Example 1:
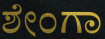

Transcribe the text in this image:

ಶೇಂಗಾ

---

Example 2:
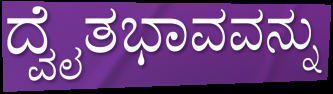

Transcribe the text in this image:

ದ್ವೈತಭಾವವನ್ನು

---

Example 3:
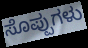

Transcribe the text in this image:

ಸೊಪ್ಪುಗಳು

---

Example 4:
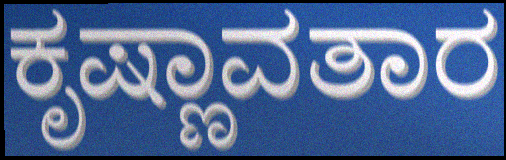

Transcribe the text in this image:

ಕೃಷ್ಣಾವತಾರ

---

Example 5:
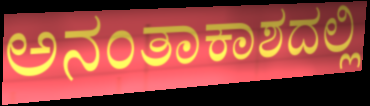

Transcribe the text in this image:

ಅನಂತಾಕಾಶದಲ್ಲಿ